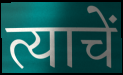
त्याचें